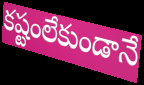
కష్టంలేకుండానే